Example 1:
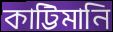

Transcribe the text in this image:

কাট্টিমানি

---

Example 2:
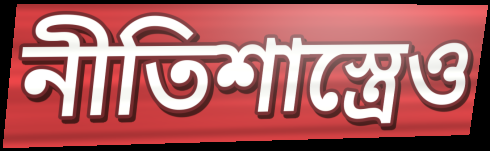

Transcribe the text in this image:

নীতিশাস্ত্রেও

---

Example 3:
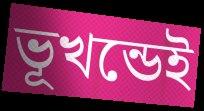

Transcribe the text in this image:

ভূখন্ডেই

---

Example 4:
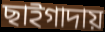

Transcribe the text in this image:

ছাইগাদায়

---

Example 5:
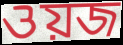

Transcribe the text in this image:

ওয়জ